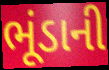
ભૂંડાની